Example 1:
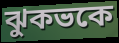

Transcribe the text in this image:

ঝুকভকে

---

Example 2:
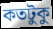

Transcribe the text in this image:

কতটুকু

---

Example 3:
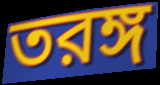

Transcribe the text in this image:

তরঙ্গ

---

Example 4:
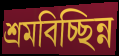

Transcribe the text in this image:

শ্রমবিচ্ছিন্ন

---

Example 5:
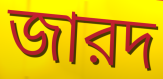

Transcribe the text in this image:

জারদ